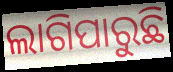
ଲାଗିପାରୁଛି